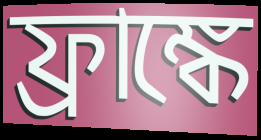
ফ্রাঙ্কে